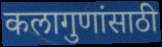
कलागुणांसाठी